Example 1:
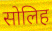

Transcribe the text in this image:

सोलिह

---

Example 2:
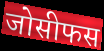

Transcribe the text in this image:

जोसीफस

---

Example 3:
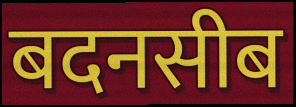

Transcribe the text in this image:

बदनसीब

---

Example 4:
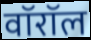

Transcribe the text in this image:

वॉरॉल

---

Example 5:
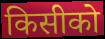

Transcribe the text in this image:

किसीको